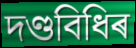
দণ্ডবিধিৰ